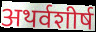
अथर्वशीर्ष